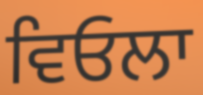
ਵਿਓਲਾ